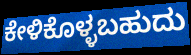
ಕೇಳಿಕೊಳ್ಳಬಹುದು